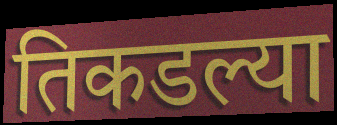
तिकडल्या